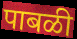
पाबळी